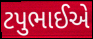
ટપુભાઈએ